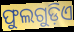
ଫୁଲଗୁଡ଼ିଏ